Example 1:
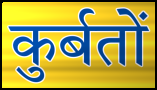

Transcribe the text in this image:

कुर्बतों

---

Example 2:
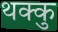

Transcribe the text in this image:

थक्कु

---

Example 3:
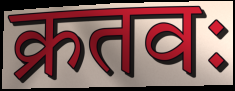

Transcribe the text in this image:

क्रतवः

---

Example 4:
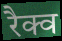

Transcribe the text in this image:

रैक्व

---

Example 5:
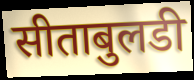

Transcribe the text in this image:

सीताबुलडी